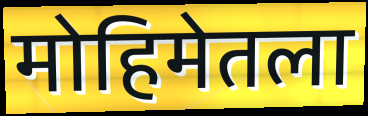
मोहिमेतला